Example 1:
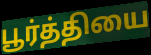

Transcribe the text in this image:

பூர்த்தியை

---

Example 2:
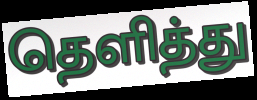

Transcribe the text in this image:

தெளித்து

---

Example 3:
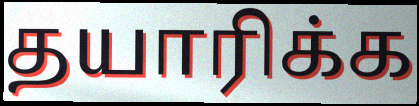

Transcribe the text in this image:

தயாரிக்க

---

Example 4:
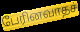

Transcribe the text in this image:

பேரினவாதச்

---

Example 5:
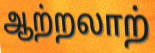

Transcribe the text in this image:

ஆற்றலாற்